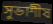
সুভাশীষ